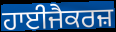
ਹਾਈਜੈਕਰਜ਼